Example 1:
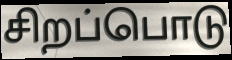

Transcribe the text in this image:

சிறப்பொடு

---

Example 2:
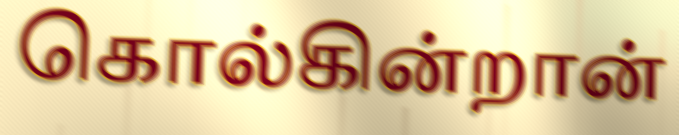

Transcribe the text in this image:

கொல்கின்றான்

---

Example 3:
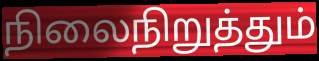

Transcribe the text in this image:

நிலைநிறுத்தும்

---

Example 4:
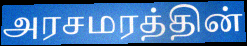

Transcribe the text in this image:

அரசமரத்தின்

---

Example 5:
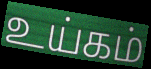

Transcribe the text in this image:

உய்கம்